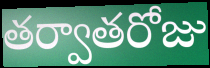
తర్వాతరోజు